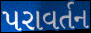
પરાવર્તન